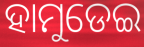
ହାମୁଡେଇ